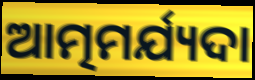
ଆତ୍ମମର୍ଯ୍ୟଦା